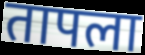
तापला